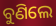
ବୁଣିଲେ